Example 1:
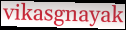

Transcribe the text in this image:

vikasgnayak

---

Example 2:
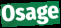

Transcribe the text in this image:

Osage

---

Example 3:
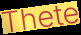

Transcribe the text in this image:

Thete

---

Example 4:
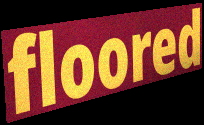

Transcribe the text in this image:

floored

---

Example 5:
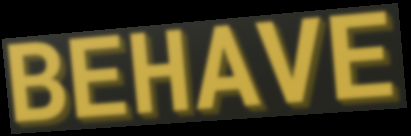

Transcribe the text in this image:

BEHAVE